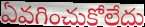
ఏవగించుకోలేదు